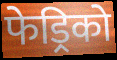
फेड्रिको